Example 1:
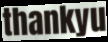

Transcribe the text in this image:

thankyu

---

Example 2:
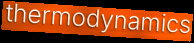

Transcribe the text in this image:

thermodynamics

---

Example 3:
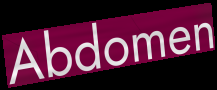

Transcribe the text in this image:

Abdomen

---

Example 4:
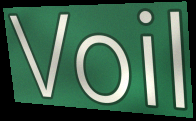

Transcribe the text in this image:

Voil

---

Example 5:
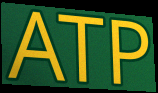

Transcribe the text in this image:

ATP